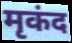
मृकंद